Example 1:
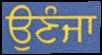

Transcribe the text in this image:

ਉਣੰਜਾ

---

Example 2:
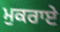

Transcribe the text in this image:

ਮੁਕਰਾਏ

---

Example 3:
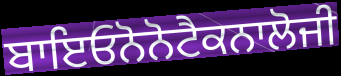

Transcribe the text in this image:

ਬਾਇਓਨੋਨੋਟੈਕਨਾਲੋਜੀ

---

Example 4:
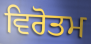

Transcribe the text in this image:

ਵਿਰੋਤਮ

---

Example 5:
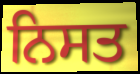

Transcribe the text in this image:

ਨਿਸਤ